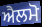
ਐਲਮੋ